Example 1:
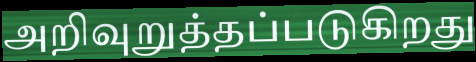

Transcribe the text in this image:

அறிவுறுத்தப்படுகிறது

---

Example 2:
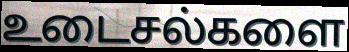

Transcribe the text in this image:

உடைசல்களை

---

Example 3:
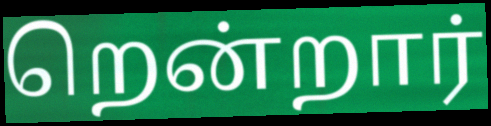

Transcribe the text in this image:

றென்றார்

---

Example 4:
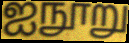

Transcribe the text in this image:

ஐநூறு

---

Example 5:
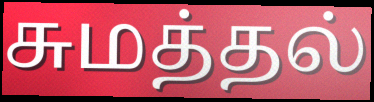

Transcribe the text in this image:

சுமத்தல்